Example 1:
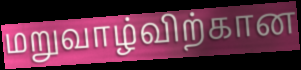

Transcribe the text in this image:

மறுவாழ்விற்கான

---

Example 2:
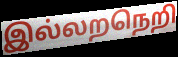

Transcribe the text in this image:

இல்லறநெறி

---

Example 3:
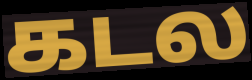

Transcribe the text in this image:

கடல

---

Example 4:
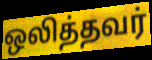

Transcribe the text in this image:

ஒலித்தவர்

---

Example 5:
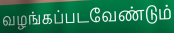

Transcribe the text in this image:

வழங்கப்படவேண்டும்